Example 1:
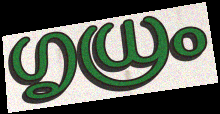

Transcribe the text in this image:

ഗൃധ്രം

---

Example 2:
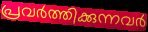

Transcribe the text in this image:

പ്രവർത്തിക്കുന്നവർ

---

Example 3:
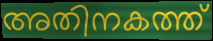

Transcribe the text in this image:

അതിനകത്ത്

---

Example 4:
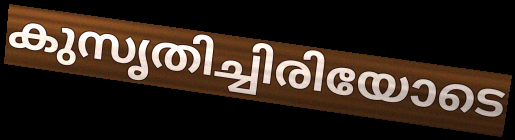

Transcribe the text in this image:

കുസൃതിച്ചിരിയോടെ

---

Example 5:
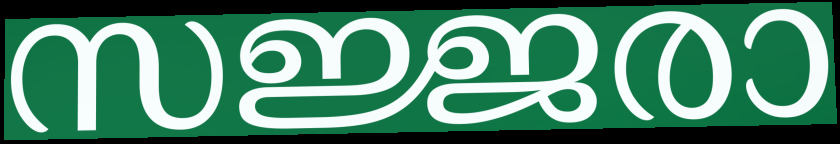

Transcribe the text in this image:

സജ്ജരാ